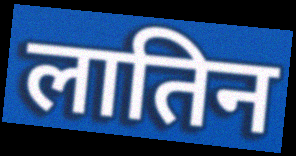
लातिन